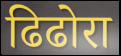
ढिढोरा